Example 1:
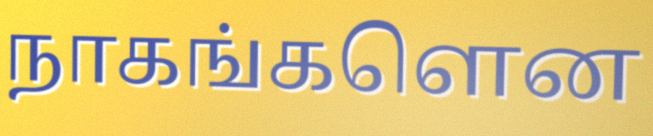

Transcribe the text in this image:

நாகங்களென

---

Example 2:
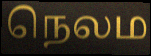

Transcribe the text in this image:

நெலம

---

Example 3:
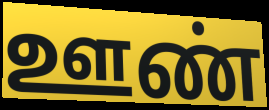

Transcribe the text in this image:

ஊண்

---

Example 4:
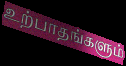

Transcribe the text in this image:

உற்பாதங்களும்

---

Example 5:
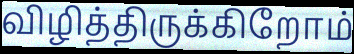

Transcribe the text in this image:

விழித்திருக்கிறோம்